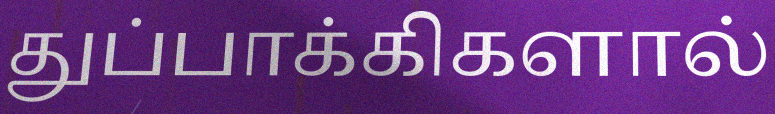
துப்பாக்கிகளால்